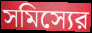
সমিস্যের